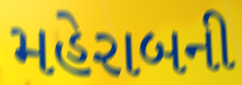
મહેરાબની